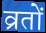
व्रतों